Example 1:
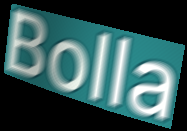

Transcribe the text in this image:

Bolla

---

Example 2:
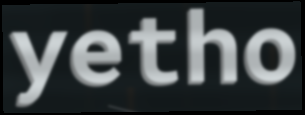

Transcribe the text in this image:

yetho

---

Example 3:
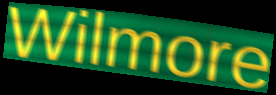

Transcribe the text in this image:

Wilmore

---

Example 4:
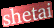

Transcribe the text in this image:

shetai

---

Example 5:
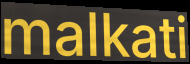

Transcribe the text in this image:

malkati